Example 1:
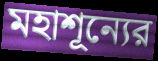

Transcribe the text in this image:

মহাশূন্যের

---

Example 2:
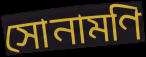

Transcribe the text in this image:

সোনামণি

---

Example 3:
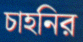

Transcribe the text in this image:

চাহনির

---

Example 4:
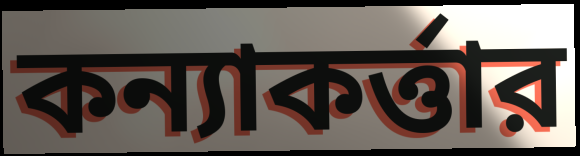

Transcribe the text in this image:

কন্যাকর্ত্তার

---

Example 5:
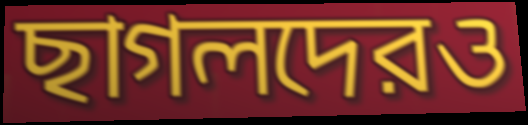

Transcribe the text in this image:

ছাগলদেরও